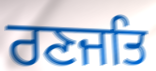
ਰਣਜਤਿ